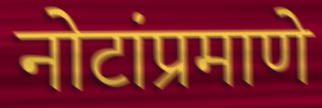
नोटांप्रमाणे